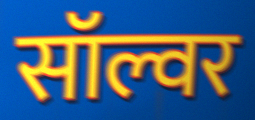
सॉल्वर